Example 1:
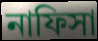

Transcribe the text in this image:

নাফিসা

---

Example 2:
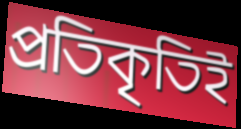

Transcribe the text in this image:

প্রতিকৃতিই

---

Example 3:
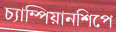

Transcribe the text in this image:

চ্যাম্পিয়ানশিপে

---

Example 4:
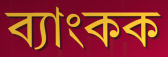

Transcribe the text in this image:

ব্যাংকক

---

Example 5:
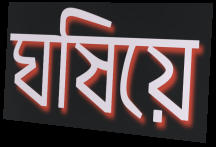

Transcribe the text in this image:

ঘষিয়ে